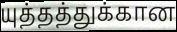
யுத்தத்துக்கான